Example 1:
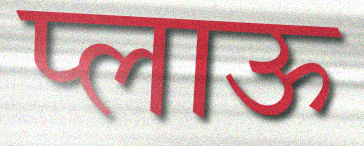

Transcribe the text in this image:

प्लाऊ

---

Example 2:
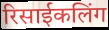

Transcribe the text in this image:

रिसाईकलिंग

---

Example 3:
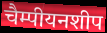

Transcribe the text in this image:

चैम्पीयनशीप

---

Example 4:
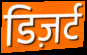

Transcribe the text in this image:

डिज़र्ट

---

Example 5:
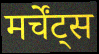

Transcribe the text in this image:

मर्चेंट्स